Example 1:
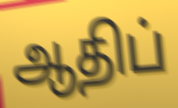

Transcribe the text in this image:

ஆதிப்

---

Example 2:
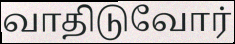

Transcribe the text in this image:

வாதிடுவோர்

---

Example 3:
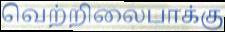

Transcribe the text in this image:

வெற்றிலைபாக்கு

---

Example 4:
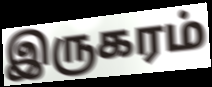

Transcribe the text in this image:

இருகரம்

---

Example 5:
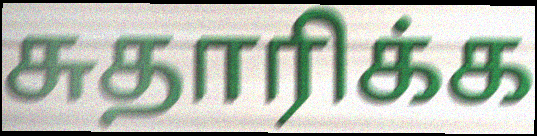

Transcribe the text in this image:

சுதாரிக்க